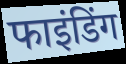
फाइंडिंग